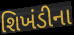
શિખંડીના